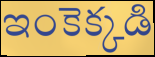
ఇంకెక్కడి